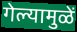
गेल्यामुळें